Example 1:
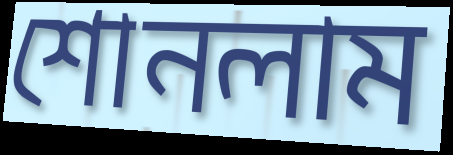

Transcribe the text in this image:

শোনলাম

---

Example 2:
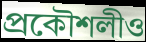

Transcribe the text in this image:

প্রকৌশলীও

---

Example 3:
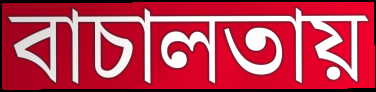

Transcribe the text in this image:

বাচালতায়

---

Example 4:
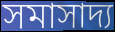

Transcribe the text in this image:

সমাসাদ্য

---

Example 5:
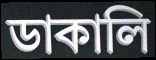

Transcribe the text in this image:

ডাকালি